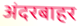
अंदरबाहर